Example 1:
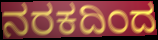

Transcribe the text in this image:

ನರಕದಿಂದ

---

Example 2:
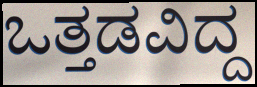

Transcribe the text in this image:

ಒತ್ತಡವಿದ್ದ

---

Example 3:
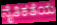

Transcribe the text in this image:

ನೈತಿಕತೆಯ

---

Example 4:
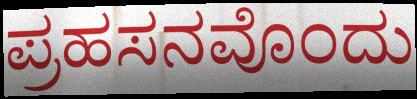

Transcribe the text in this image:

ಪ್ರಹಸನವೊಂದು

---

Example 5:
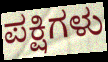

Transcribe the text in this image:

ಪಕ್ಷಿಗಳು